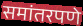
समांतरपणे